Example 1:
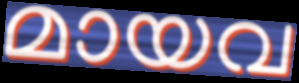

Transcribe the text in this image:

മായവ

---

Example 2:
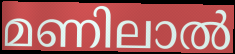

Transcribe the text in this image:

മണിലാൽ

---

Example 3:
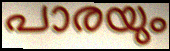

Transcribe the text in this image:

പാരയും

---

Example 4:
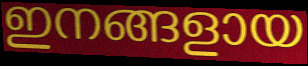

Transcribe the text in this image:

ഇനങ്ങളായ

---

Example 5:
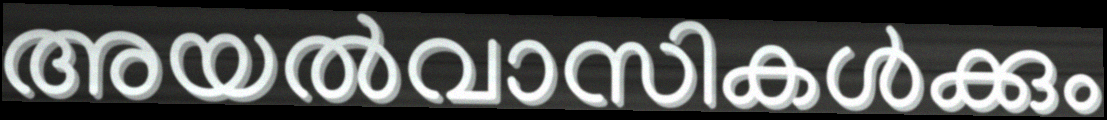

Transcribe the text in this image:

അയൽവാസികൾക്കും